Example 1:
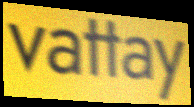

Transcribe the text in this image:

vattay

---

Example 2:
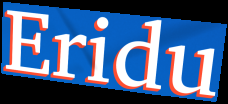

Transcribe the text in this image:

Eridu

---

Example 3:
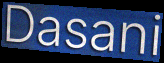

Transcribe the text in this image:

Dasani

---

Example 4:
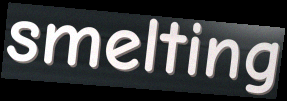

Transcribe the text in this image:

smelting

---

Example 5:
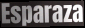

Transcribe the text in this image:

Esparaza